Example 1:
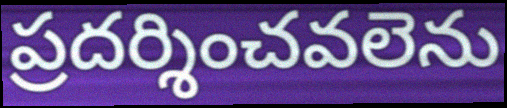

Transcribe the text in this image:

ప్రదర్శించవలెను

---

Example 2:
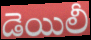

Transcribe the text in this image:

డెయిలీ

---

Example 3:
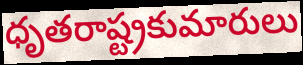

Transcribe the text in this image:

ధృతరాష్ట్రకుమారులు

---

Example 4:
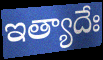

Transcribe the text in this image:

ఇత్యాదేః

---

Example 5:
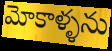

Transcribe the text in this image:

మోకాళ్ళను